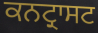
ਕਨਟ੍ਰਾਸਟ